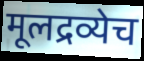
मूलद्रव्येच